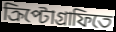
ক্রিপ্টোগ্রাফিতে